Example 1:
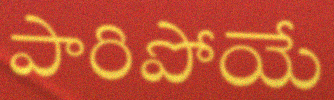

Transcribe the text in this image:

పారిపోయే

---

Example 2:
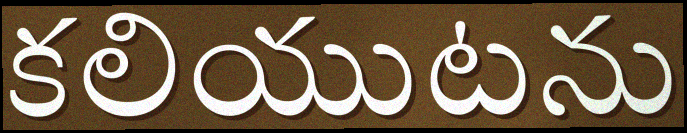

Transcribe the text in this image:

కలియుటను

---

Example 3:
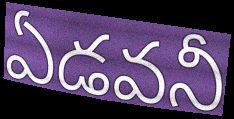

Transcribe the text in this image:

ఏడవనీ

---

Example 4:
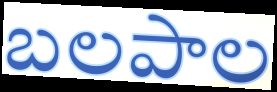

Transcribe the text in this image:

బలపాల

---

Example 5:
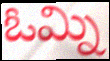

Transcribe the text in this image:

ఓమ్ని